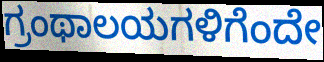
ಗ್ರಂಥಾಲಯಗಳಿಗೆಂದೇ